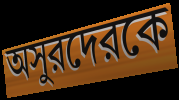
অসুরদেরকে